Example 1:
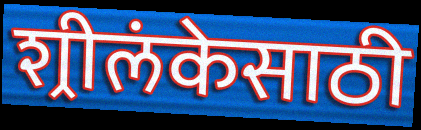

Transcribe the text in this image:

श्रीलंकेसाठी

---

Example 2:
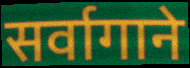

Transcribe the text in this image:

सर्वागाने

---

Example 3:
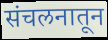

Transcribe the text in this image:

संचलनातून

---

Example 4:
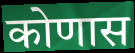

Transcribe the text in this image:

कोणास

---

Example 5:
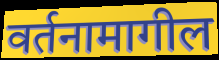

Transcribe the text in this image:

वर्तनामागील